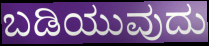
ಬಡಿಯುವುದು